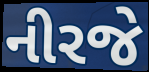
નીરજે